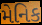
મેનિક